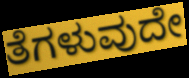
ತೆಗಳುವುದೇ